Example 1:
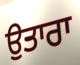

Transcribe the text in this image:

ਉਤਾਰਾ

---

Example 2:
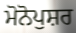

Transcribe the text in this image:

ਮੋਨੋਪੁਸ਼ਰ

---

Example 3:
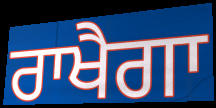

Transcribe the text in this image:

ਰਾਖੈਗਾ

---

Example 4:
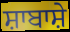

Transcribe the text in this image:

ਸ਼ਾਬਾਸ਼ੇ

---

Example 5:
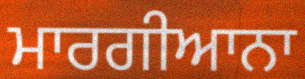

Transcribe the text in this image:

ਮਾਰਗੀਆਨਾ